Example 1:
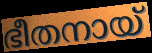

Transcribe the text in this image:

ഭീതനായ്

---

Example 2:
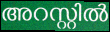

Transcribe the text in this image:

അറസ്റ്റിൽ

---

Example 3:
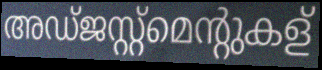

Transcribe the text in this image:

അഡ്ജസ്റ്റ്മെന്റുകള്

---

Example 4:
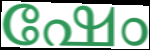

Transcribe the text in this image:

ഷേം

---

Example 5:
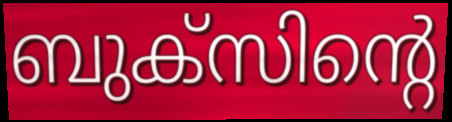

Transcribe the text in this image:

ബുക്സിന്റെ